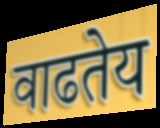
वाढतेय